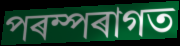
পৰম্পৰাগত